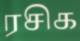
ரசிக